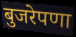
बुजरेपणा